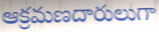
ఆక్రమణదారులుగా